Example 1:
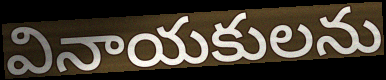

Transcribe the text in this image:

వినాయకులను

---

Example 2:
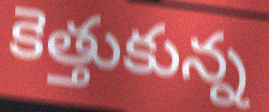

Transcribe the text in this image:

కెత్తుకున్న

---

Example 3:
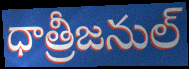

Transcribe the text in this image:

ధాత్రీజనుల్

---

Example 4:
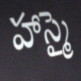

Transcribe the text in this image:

హాస్మై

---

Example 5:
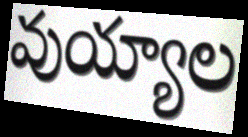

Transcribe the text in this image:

వుయ్యాల